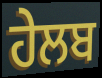
ਹੇਲਬ